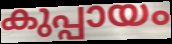
കുപ്പായം